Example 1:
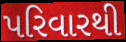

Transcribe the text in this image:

પરિવારથી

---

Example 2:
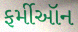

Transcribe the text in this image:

ફર્મીઑન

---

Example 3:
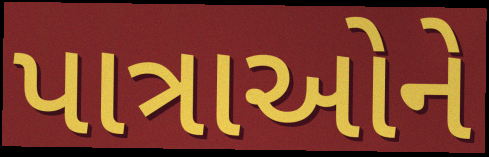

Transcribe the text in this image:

પાત્રાઓને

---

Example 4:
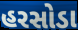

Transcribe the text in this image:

હરસોડા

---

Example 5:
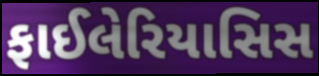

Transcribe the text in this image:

ફાઈલેરિયાસિસ